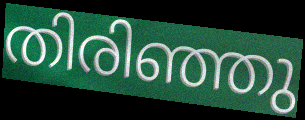
തിരിഞ്ഞു